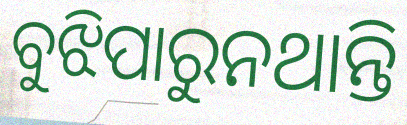
ବୁଝିପାରୁନଥାନ୍ତି